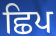
ਛਿਪ